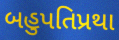
બહુપતિપ્રથા